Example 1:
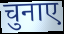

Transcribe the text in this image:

चुनाए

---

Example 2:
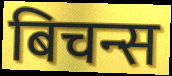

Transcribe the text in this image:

बिचन्स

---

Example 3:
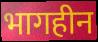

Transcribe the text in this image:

भागहीन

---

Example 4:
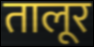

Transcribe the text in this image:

तालूर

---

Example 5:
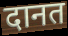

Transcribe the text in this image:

दानत